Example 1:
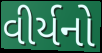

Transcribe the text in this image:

વીર્યનો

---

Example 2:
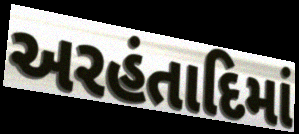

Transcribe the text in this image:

અરહંતાદિમાં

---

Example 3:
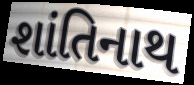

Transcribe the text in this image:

શાંતિનાથ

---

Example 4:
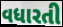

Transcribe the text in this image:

વધારતી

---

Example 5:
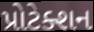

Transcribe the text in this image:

પ્રોટેક્શન